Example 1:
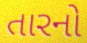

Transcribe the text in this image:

તારનો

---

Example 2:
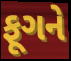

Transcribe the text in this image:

ફૂગને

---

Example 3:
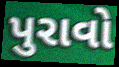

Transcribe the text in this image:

પુરાવો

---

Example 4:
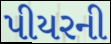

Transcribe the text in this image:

પીયરની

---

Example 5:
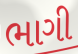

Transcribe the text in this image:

ભાગી